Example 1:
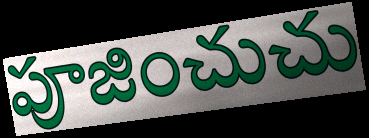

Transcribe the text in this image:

పూజించుచు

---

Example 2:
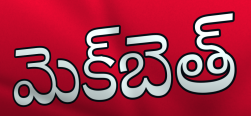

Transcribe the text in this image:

మెక్‌బెత్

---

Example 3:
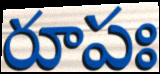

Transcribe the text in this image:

రూపః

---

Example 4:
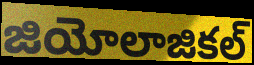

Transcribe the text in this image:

జియోలాజికల్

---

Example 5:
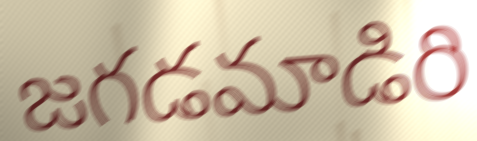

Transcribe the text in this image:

జగడమాడిరి